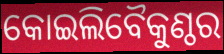
କୋଇଲିବୈକୁଣ୍ଠର